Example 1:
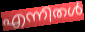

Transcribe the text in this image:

എന്നിതൾ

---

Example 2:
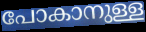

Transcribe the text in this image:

പോകാനുള്ള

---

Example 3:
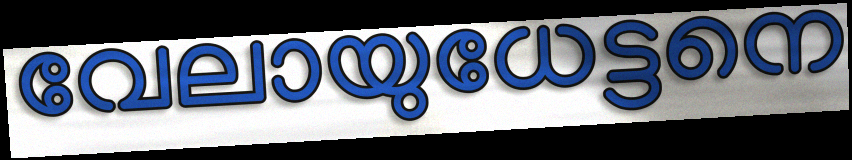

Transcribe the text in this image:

വേലായുധേട്ടനെ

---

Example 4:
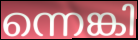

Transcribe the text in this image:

ന്നെങ്കി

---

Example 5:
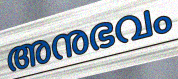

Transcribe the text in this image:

അനുഭവം